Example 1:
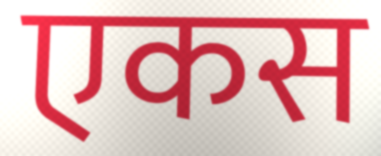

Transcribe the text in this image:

एकस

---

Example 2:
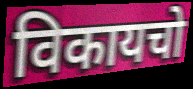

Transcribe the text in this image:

विकायचो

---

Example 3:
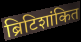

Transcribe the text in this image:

ब्रिटिशांकित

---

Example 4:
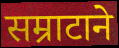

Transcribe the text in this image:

सम्राटाने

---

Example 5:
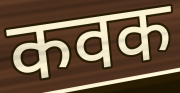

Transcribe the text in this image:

कवक